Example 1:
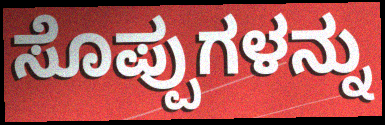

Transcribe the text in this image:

ಸೊಪ್ಪುಗಳನ್ನು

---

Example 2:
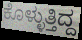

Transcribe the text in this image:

ಕೊಳ್ಳುತ್ತಿದ್ದ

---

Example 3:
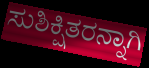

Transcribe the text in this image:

ಸುಶಿಕ್ಷಿತರನ್ನಾಗಿ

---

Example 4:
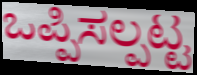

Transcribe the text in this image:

ಒಪ್ಪಿಸಲ್ಪಟ್ಟ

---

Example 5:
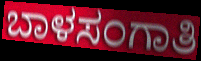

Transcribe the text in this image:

ಬಾಳಸಂಗಾತಿ